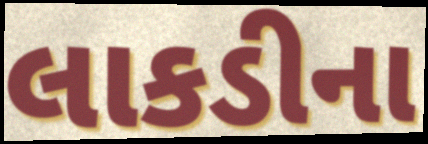
લાકડીના